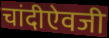
चांदीऐवजी